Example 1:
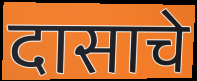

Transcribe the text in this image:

दासाचे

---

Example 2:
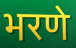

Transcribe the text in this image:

भरणे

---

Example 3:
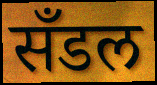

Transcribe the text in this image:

सँडल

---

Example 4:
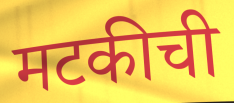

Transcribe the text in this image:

मटकीची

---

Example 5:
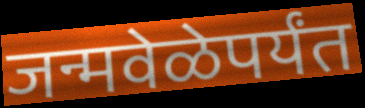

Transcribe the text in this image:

जन्मवेळेपर्यंत